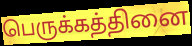
பெருக்கத்தினை